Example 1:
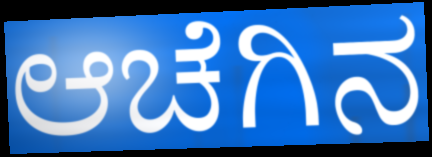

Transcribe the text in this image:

ಆಚೆಗಿನ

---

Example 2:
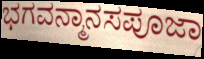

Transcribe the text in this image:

ಭಗವನ್ಮಾನಸಪೂಜಾ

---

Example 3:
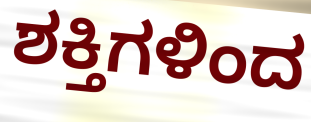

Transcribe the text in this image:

ಶಕ್ತಿಗಳಿಂದ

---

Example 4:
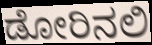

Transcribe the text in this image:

ಡೋರಿನಲಿ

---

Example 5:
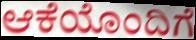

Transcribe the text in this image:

ಆಕೆಯೊಂದಿಗೆ